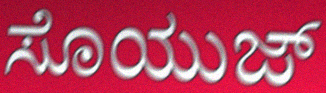
ಸೊಯುಜ್